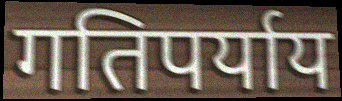
गतिपर्याय